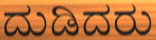
ದುಡಿದರು